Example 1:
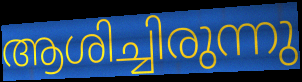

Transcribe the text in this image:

ആശിച്ചിരുന്നു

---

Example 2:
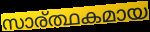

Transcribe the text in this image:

സാര്ത്ഥകമായ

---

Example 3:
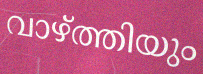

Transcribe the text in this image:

വാഴ്ത്തിയും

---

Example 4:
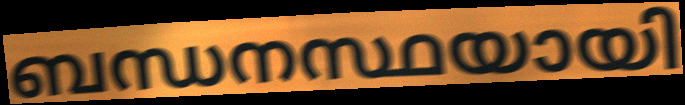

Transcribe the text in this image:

ബന്ധനസ്ഥയായി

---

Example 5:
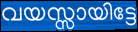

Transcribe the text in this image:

വയസ്സായിട്ടേ